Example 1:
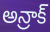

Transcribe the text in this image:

అన్రాక్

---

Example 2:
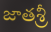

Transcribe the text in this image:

జాతశ్రీ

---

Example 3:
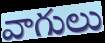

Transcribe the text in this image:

వాగులు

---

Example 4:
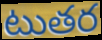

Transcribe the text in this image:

టుతర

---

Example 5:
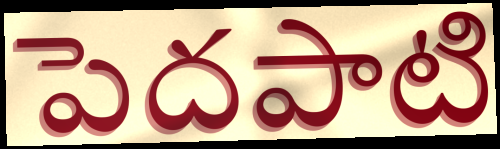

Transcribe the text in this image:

పెదపాటి